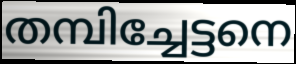
തമ്പിച്ചേട്ടനെ